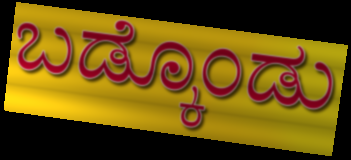
ಬಡ್ಕೊಂಡು